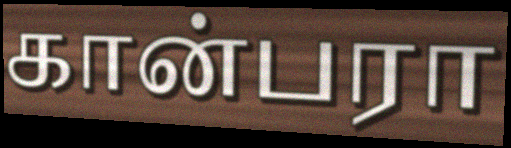
கான்பரா